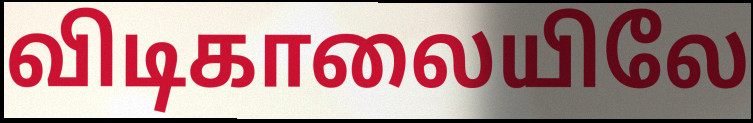
விடிகாலையிலே